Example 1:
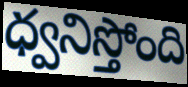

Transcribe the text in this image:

ధ్వనిస్తోంది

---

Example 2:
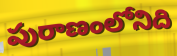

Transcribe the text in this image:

పురాణంలోనిది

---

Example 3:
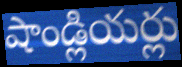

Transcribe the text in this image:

షాండ్లియర్లు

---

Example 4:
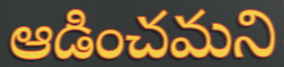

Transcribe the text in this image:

ఆడించమని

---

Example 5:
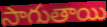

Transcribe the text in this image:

సాగుతాయి